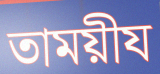
তাময়ীয